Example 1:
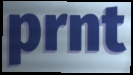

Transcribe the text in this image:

prnt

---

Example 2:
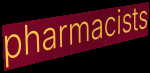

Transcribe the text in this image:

pharmacists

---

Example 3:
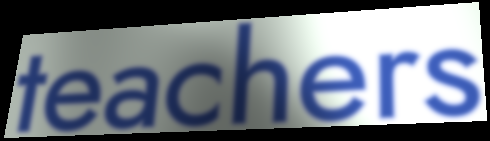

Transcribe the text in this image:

teachers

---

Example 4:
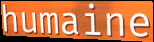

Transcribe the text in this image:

humaine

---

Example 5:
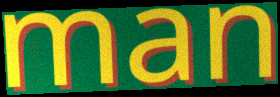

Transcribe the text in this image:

man